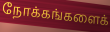
நோக்கங்களைக்